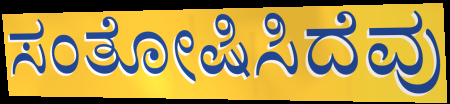
ಸಂತೋಷಿಸಿದೆವು